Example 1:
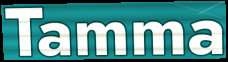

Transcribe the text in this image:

Tamma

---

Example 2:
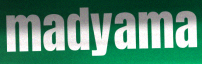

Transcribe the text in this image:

madyama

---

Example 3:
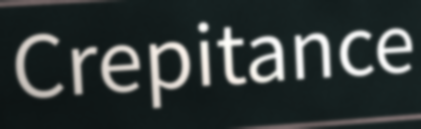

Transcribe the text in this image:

Crepitance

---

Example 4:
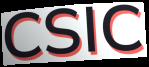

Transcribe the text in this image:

CSIC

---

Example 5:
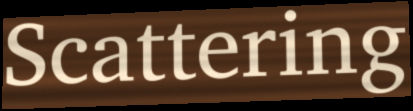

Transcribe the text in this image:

Scattering